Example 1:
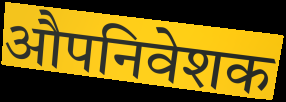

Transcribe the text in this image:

औपनिवेशक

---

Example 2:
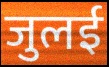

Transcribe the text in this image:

जुलई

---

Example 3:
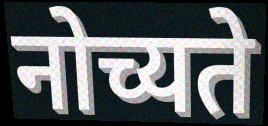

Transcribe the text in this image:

नोच्यते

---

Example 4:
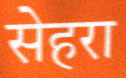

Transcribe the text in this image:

सेहरा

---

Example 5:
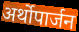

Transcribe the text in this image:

अर्थोपार्जन